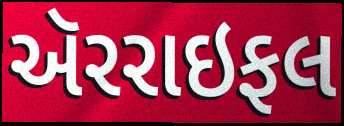
ઍરરાઇફલ